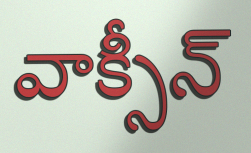
వాక్సీన్